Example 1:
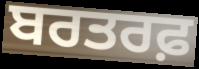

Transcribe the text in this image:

ਬਰਤਰਫ਼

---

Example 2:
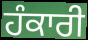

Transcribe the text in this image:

ਹੰਕਾਰੀ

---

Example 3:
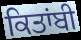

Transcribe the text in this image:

ਕਿਤਾਂਬੀ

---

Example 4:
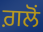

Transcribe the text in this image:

ਗ਼ਲੋਂ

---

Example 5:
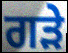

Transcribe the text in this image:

ਗੜੇ